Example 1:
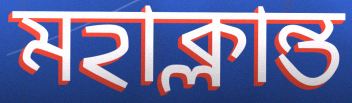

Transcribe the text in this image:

মহাক্লান্ত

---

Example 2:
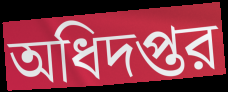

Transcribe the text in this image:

অধিদপ্তর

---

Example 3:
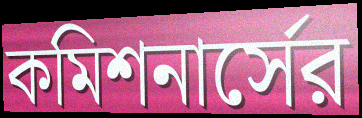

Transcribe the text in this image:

কমিশনার্সের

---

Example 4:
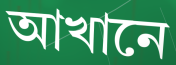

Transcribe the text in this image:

আখানে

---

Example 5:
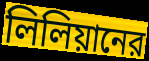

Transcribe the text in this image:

লিলিয়ানের